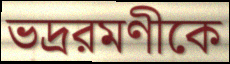
ভদ্ররমণীকে